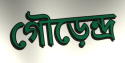
গৌড়েন্দ্র